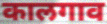
कालगाव